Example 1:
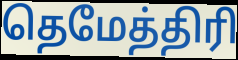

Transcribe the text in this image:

தெமேத்திரி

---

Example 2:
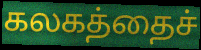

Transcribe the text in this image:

கலகத்தைச்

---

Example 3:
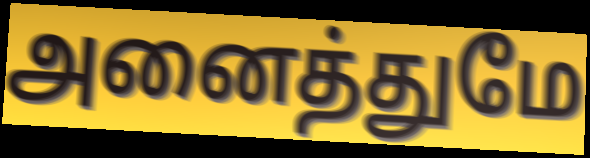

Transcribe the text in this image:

அனைத்துமே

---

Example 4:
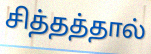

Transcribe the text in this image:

சித்தத்தால்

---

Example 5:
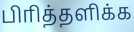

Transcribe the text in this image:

பிரித்தளிக்க